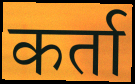
कर्ता